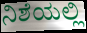
ನಿಶೆಯಲ್ಲಿ